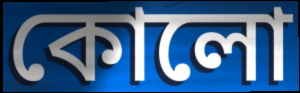
কোলো